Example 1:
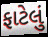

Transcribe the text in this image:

ફાટેલું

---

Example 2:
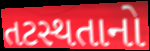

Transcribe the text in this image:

તટસ્થતાનો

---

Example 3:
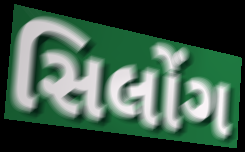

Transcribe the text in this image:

સિલોંગ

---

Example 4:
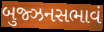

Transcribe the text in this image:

બુજ્ઝનસભાવં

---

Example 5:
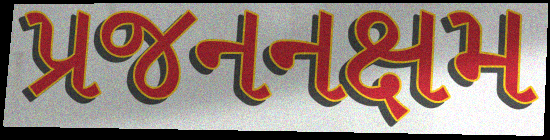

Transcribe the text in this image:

પ્રજનનક્ષમ